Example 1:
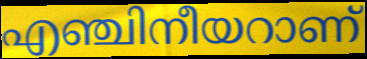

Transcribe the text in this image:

എഞ്ചിനീയറാണ്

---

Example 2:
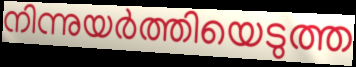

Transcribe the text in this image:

നിന്നുയർത്തിയെടുത്ത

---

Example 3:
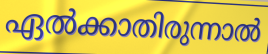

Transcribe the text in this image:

ഏൽക്കാതിരുന്നാൽ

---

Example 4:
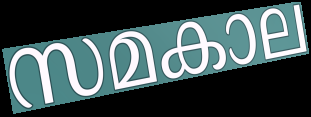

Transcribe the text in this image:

സമകാല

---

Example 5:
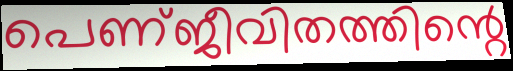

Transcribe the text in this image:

പെണ്ജീവിതത്തിന്റെ